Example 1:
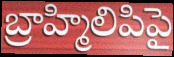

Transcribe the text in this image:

బ్రాహ్మిలిపిపై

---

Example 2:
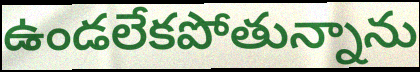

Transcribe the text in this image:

ఉండలేకపోతున్నాను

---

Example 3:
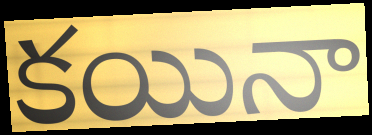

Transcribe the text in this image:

కయినా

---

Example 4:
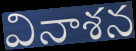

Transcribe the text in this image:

వినాశన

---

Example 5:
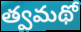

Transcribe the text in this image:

త్వమథో